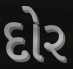
દોર